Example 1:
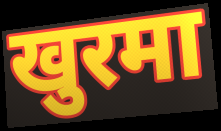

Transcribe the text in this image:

खुरमा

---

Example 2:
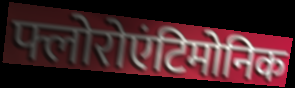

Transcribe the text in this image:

फ्लोरोएंटिमोनिक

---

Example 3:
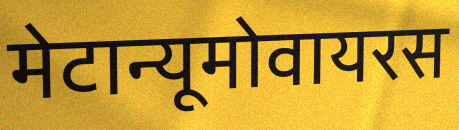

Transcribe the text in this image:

मेटान्यूमोवायरस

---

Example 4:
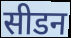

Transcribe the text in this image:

सीडन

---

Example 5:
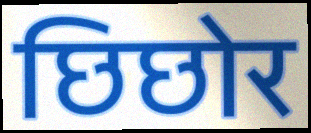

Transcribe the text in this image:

छिछोर